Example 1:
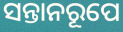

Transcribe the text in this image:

ସନ୍ତାନରୂପେ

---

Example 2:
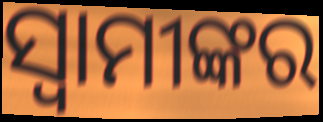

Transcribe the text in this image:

ସ୍ୱାମୀଙ୍କର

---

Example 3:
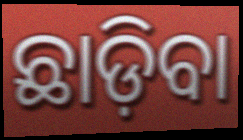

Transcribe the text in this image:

ଛାଡ଼ିବା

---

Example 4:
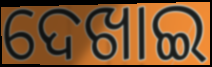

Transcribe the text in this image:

ଦେଖାଇ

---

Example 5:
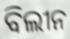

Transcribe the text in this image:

ବିଲୀନ